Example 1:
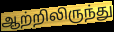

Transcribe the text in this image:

ஆற்றிலிருந்து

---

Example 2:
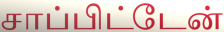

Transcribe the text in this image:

சாப்பிட்டேன்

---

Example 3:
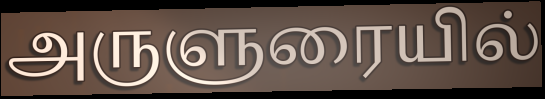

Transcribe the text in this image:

அருளுரையில்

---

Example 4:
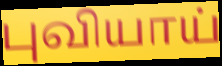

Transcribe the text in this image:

புவியாய்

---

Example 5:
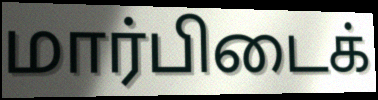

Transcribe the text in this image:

மார்பிடைக்